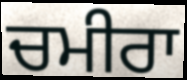
ਚਮੀਰਾ